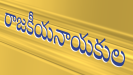
రాజకీయనాయకుల